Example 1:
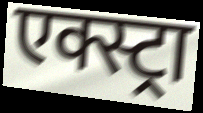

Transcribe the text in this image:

एक्स्ट्रा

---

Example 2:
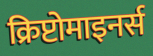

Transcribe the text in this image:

क्रिप्टोमाइनर्स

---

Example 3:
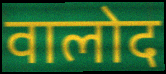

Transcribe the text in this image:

वालोद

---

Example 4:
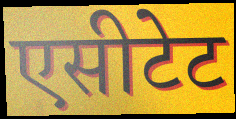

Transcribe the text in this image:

एसीटेट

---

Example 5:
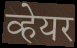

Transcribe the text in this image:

व्हेयर